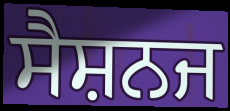
ਸੈਸ਼ਨਜ